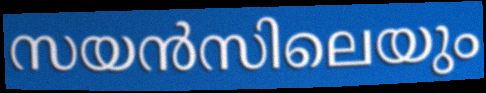
സയൻസിലെയും